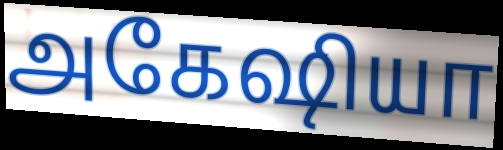
அகேஷியா